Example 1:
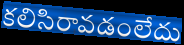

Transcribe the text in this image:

కలిసిరావడంలేదు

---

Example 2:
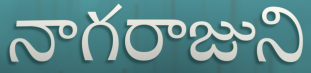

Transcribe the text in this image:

నాగరాజుని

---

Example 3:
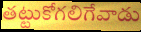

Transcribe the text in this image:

తట్టుకోగలిగేవాడు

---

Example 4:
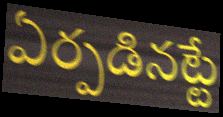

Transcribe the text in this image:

ఏర్పడినట్టే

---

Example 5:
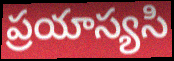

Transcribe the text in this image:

ప్రయాస్యసి